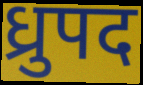
ध्रुपद